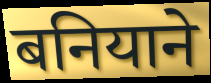
बनियाने